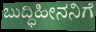
ಬುದ್ಧಿಹೀನನಿಗೆ